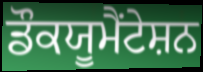
ਡੌਕਯੂਮੈਂਟੇਸ਼ਨ